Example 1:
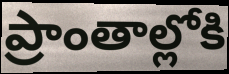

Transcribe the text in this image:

ప్రాంతాల్లోకి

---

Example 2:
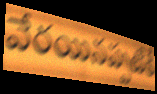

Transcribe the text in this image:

వేరయినప్పటికీ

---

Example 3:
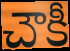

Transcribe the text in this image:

చౌకీ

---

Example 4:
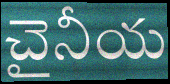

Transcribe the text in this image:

చైనీయ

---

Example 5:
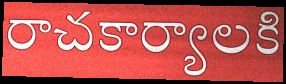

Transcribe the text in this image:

రాచకార్యాలకి